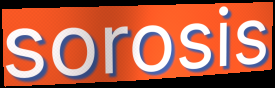
sorosis